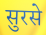
सुरसे